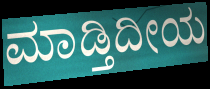
ಮಾಡ್ತಿದೀಯ